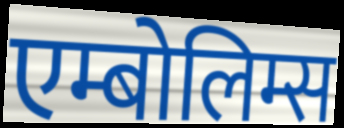
एम्बोलिम्स